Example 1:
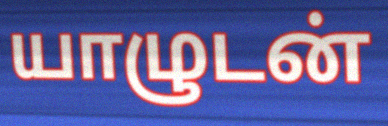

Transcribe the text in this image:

யாழுடன்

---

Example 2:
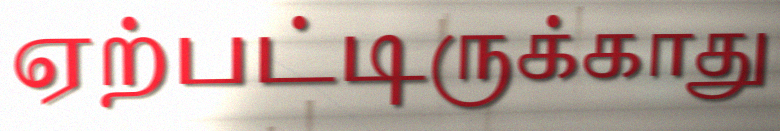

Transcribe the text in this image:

ஏற்பட்டிருக்காது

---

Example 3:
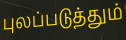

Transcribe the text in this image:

புலப்படுத்தும்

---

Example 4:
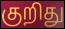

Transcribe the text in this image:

குறிது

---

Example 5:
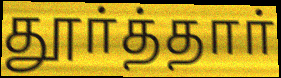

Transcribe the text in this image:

தூர்த்தார்